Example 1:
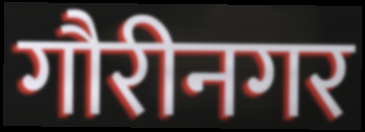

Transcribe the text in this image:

गौरीनगर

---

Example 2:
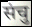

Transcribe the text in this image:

संचु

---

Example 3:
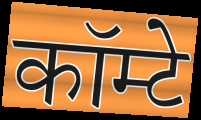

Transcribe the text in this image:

कॉम्टे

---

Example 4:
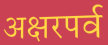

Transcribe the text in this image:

अक्षरपर्व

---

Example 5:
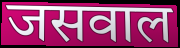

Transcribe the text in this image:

जसवाल